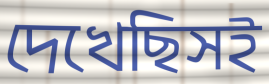
দেখেছিসই